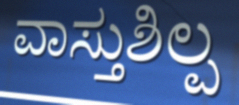
ವಾಸ್ತುಶಿಲ್ಪ